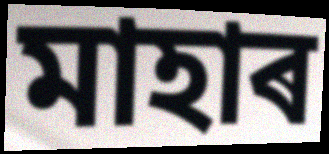
মাহাৰ